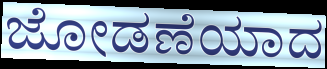
ಜೋಡಣೆಯಾದ